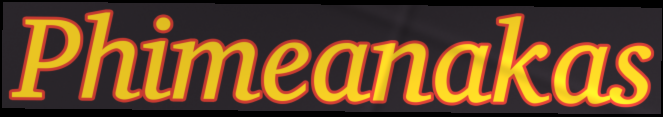
Phimeanakas